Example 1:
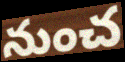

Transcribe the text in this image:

నుంచ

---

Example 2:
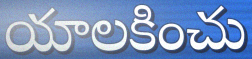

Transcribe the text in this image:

యాలకించు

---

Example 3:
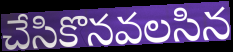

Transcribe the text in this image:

చేసికొనవలసిన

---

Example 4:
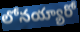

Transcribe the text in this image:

లోనయ్యారో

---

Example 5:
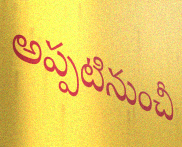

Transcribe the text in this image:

అప్పటినుంచీ